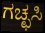
ಗಚ್ಛಸಿ